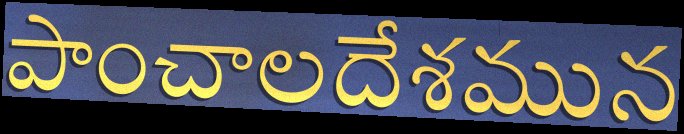
పాంచాలదేశమున